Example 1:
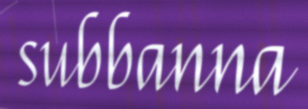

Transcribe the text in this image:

subbanna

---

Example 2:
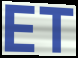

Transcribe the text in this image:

ET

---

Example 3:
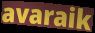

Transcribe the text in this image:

avaraik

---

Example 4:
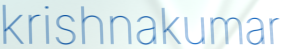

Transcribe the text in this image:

krishnakumar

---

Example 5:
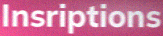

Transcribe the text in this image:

Insriptions